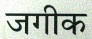
जगीक